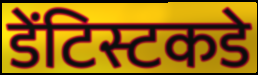
डेंटिस्टकडे